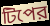
টিপের